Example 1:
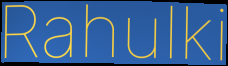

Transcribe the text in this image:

Rahulki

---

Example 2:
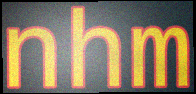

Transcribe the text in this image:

nhm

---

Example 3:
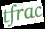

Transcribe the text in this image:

tfrac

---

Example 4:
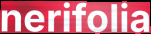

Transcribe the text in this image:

nerifolia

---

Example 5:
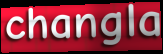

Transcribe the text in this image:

changla